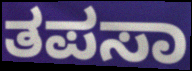
ತಪಸಾ